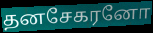
தனசேகரனோ